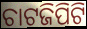
ଚାଟଜିପିଟି